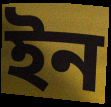
ইন